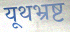
यूथभ्रष्ट